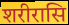
शरीरासि